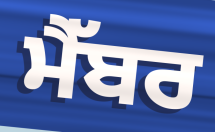
ਮੈੱਬਰ